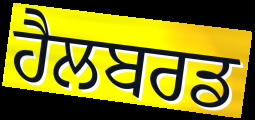
ਹੈਲਬਰਡ